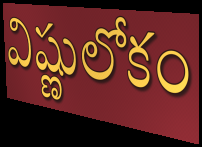
విష్ణులోకం